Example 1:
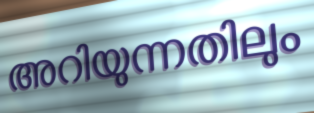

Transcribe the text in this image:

അറിയുന്നതിലും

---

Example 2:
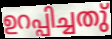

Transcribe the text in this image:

ഉറപ്പിച്ചതു്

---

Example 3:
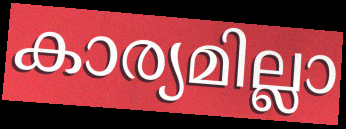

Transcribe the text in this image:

കാര്യമില്ലാ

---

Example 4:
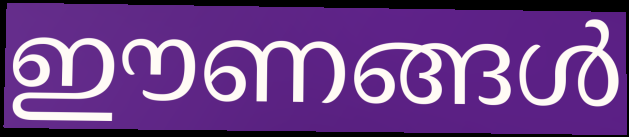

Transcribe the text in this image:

ഈണങ്ങൾ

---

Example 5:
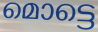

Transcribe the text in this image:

മൊട്ടെ